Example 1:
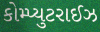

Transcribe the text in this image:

કોમ્પ્યુટરાઈઝ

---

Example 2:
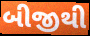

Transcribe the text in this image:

બીજીથી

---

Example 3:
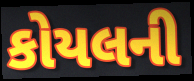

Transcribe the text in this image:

કોયલની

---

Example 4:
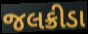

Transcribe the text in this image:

જલક્રીડા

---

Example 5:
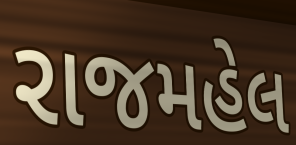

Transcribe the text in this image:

રાજમહેલ